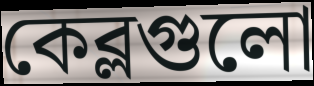
কেব্লগুলো